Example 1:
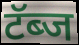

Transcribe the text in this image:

टॅब्ज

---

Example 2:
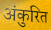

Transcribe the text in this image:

अंकुरित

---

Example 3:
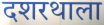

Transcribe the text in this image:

दशरथाला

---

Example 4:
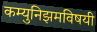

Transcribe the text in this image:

कम्युनिझमविषयी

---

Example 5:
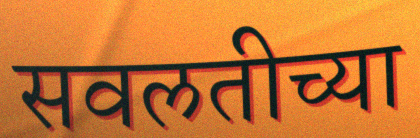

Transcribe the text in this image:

सवलतीच्या